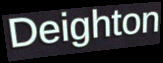
Deighton